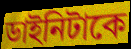
ডাইনিটাকে